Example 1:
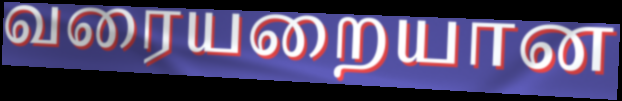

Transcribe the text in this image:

வரையறையான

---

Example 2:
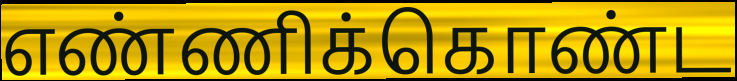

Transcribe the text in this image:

எண்ணிக்கொண்ட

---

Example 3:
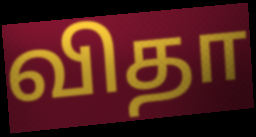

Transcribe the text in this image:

விதா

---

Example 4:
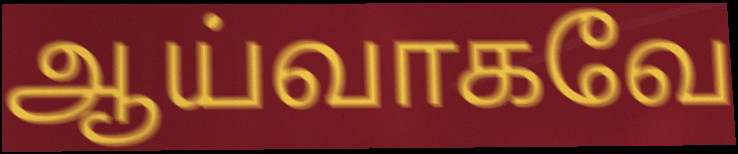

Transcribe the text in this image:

ஆய்வாகவே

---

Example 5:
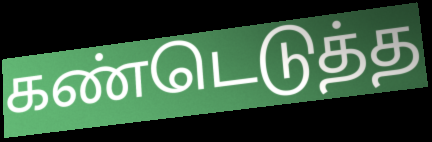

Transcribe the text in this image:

கண்டெடுத்த